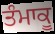
ਤੰਮਾਕੂ